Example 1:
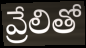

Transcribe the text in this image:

వ్రేలితో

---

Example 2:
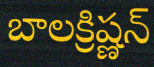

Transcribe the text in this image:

బాలక్రిష్ణన్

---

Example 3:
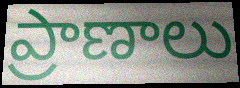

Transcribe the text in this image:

ప్రాణాలు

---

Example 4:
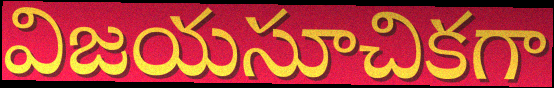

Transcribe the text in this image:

విజయసూచికగా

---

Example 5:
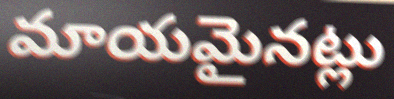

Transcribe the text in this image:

మాయమైనట్లు